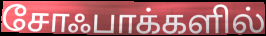
சோஃபாக்களில்